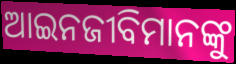
ଆଇନଜୀବିମାନଙ୍କୁ